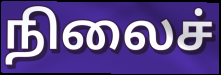
நிலைச்